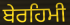
ਬੇਰਹਿਮੀ